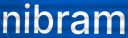
nibram